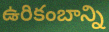
ఉరికంబాన్ని